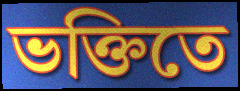
ভক্তিতে